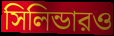
সিলিন্ডারও